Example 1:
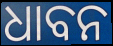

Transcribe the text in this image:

ଧାବନ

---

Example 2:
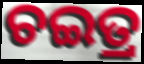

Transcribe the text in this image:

ଚଇତ୍ର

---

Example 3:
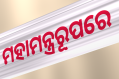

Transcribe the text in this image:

ମହାମନ୍ତ୍ରରୂପରେ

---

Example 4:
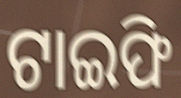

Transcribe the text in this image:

ଟାଇଫି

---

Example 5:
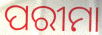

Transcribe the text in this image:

ପରୀମା